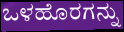
ಒಳಹೊರಗನ್ನು